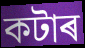
কটাৰ